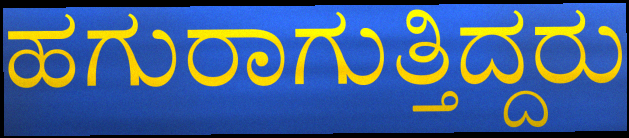
ಹಗುರಾಗುತ್ತಿದ್ದರು